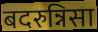
बदरुन्निसा